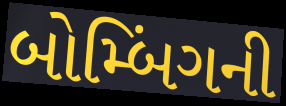
બોમ્બિંગની